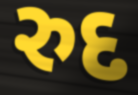
રુદ